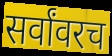
सर्वांवरच